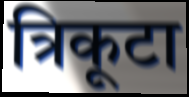
त्रिकूटा